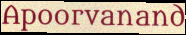
Apoorvanand